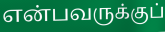
என்பவருக்குப்